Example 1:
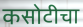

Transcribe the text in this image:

कसोटीचा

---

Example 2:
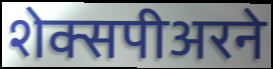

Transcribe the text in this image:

शेक्सपीअरने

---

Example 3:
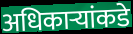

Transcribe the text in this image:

अधिकार्‍यांकडे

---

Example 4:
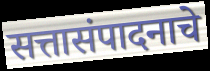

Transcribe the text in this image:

सत्तासंपादनाचे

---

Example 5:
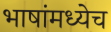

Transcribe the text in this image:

भाषांमध्येच